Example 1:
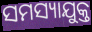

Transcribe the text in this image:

ସମସ୍ୟାଯୁକ୍ତ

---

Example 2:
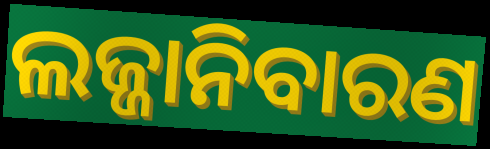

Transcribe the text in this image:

ଲଜ୍ଜାନିବାରଣ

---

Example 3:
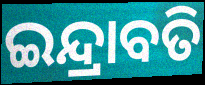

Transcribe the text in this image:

ଇନ୍ଦ୍ରାବତି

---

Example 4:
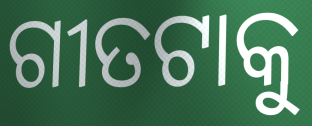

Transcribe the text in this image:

ଗୀତଟାକୁ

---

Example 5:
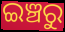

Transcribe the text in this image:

ଇଞ୍ଚରୁ